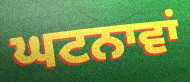
ਘਟਨਾਵਾਂ